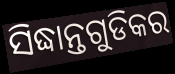
ସିଦ୍ଧାନ୍ତଗୁଡିକର